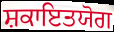
ਸ਼ਕਾਇਤਯੋਗ